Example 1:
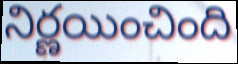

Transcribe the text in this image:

నిర్ణయించింది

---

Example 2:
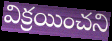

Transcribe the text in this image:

విక్రయించని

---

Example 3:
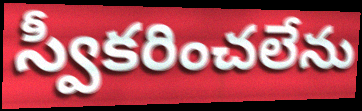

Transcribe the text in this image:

స్వీకరించలేను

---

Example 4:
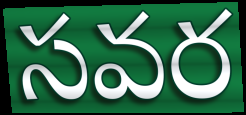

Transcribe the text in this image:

సవర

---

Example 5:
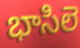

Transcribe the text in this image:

భాసిలె